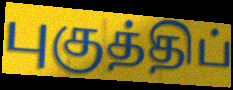
புகுத்திப்